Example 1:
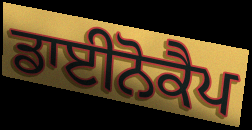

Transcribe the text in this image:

ਡਾਈਨੋਕੈਪ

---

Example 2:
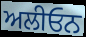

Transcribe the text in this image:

ਅਲੀਓਨ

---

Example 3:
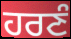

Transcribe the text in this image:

ਹਰਣੰ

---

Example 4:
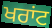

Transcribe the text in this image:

ਖਰਾਂਟ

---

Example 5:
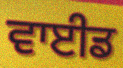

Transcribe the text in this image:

ਵਾਈਡ